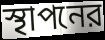
স্থাপনের